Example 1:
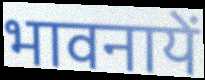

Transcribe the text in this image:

भावनायें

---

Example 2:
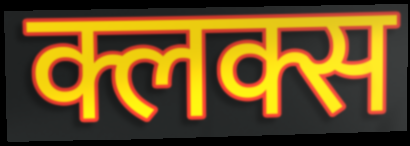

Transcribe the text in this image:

क्लक्स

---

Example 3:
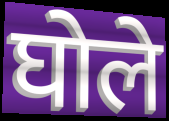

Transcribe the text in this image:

घोले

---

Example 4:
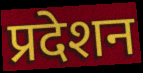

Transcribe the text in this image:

प्रदेशन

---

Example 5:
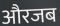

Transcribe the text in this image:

औरजब